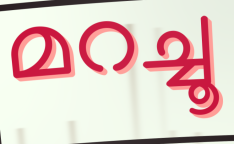
മറച്ചൂ